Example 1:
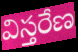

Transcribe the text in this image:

విస్తరేణ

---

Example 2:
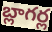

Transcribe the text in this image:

బ్లాగర్ల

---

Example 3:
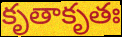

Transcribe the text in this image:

కృతాకృతః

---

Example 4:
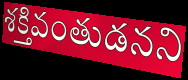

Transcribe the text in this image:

శక్తివంతుడనని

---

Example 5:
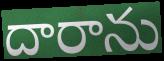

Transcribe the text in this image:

దారాను